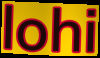
lohi